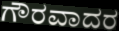
ಗೌರವಾದರ